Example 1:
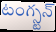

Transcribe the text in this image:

టంగ్స్టన్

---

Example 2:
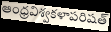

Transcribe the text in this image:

ఆంధ్రవిశ్వకళాపరిషత్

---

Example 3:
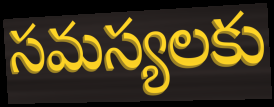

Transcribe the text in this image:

సమస్యలకు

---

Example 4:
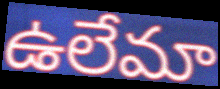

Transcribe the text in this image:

ఉలేమా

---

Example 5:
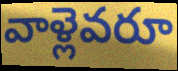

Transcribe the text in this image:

వాళ్లెవరూ